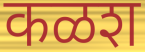
कळश